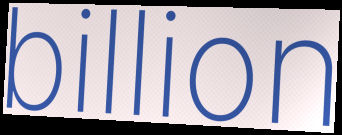
billion